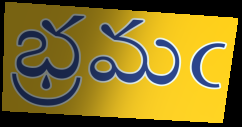
భ్రమఁ